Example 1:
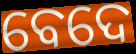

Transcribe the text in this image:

ବେଦେ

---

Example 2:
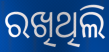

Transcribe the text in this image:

ରଖିଥିଲି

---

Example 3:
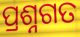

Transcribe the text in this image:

ପ୍ରଶ୍ନଗତ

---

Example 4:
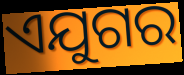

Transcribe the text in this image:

ଏଯୁଗର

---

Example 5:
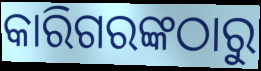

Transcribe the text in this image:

କାରିଗରଙ୍କଠାରୁ